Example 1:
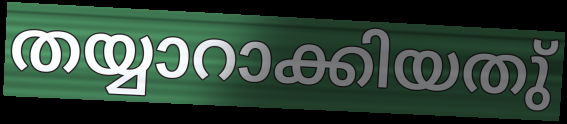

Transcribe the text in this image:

തയ്യാറാക്കിയതു്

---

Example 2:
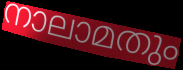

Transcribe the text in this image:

നാലാമതും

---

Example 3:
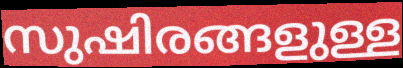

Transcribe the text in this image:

സുഷിരങ്ങളുള്ള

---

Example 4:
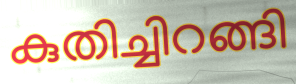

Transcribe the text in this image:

കുതിച്ചിറങ്ങി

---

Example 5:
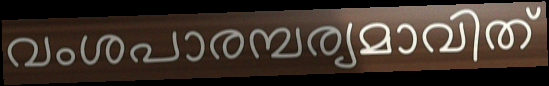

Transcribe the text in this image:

വംശപാരമ്പര്യമാവിത്